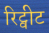
रिट्वीट